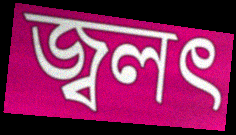
জ্বলৎ